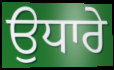
ਉਧਾਰੇ